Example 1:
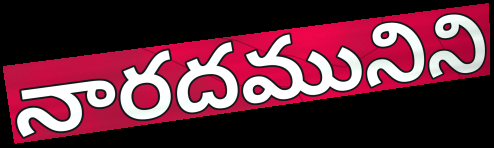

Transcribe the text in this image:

నారదమునిని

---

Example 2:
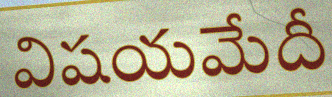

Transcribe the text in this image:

విషయమేదీ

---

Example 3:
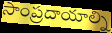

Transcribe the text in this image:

సాంప్రదాయాల్ని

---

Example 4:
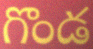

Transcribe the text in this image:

గొండ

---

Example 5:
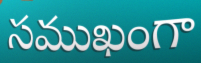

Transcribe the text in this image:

సముఖంగా